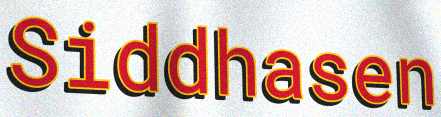
Siddhasen